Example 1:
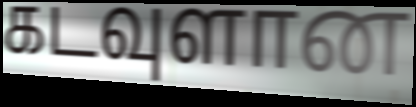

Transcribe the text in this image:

கடவுளான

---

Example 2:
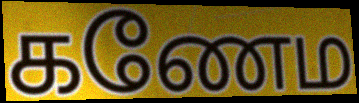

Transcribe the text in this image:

கணேம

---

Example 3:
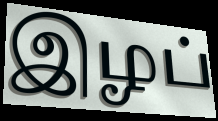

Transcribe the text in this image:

இழப்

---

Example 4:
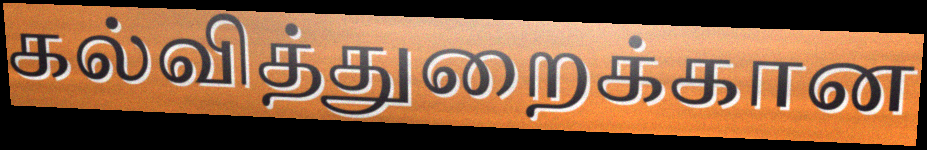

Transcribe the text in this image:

கல்வித்துறைக்கான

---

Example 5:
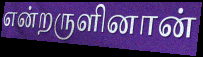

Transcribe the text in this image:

என்றருளினான்